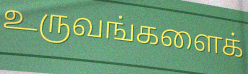
உருவங்களைக்